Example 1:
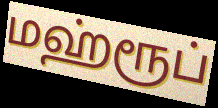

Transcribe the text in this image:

மஹ்ரூப்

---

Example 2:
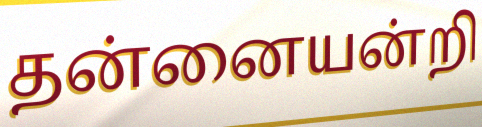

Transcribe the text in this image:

தன்னையன்றி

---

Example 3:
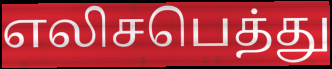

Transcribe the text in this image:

எலிசபெத்து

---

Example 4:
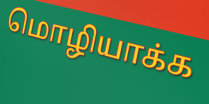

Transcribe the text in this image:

மொழியாக்க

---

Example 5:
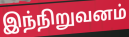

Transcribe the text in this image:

இந்நிறுவனம்